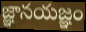
జ్ఞానయజ్ఞం